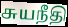
சுயநீதி